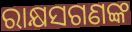
ରାକ୍ଷସଗଣଙ୍କ